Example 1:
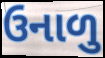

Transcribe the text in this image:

ઉનાળુ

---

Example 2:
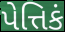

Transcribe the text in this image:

પેત્તિકં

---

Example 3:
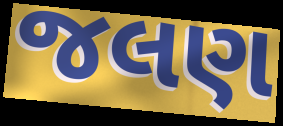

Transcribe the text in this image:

જલણ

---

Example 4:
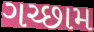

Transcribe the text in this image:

ગચ્છામ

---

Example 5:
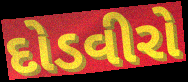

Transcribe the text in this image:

દોડવીરો